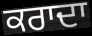
ਕਰਾਦਾ